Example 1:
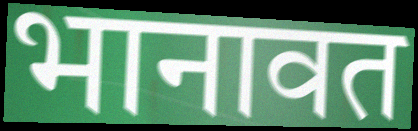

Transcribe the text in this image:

भानावत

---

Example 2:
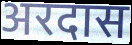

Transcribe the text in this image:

अरदास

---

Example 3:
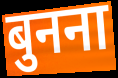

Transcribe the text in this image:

बुनना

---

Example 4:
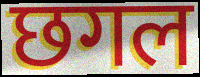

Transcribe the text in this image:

छगल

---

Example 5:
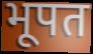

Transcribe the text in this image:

भूपत